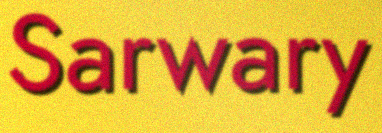
Sarwary